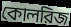
কোলরিজ